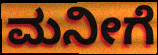
ಮನೀಗೆ